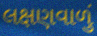
લક્ષણવાળું